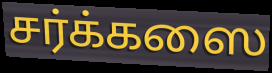
சர்க்கஸை